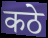
कठे